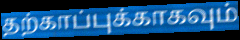
தற்காப்புக்காகவும்